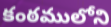
కంఠములోని